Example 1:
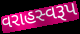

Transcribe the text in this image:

વરાહસ્વરૂપ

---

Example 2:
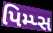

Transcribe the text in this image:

પિમ્પ્સ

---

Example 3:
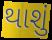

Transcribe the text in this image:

થાશું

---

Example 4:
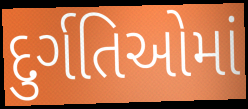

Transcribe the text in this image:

દુર્ગતિઓમાં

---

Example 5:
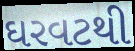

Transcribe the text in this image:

ઘરવટથી